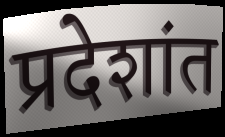
प्रदेशांत